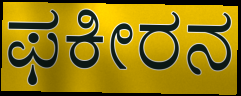
ಫಕೀರನ